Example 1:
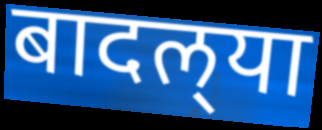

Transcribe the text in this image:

बादल्या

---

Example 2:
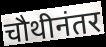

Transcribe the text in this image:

चौथीनंतर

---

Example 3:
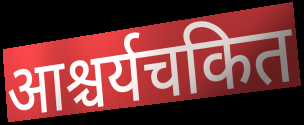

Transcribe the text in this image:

आश्चर्यचकित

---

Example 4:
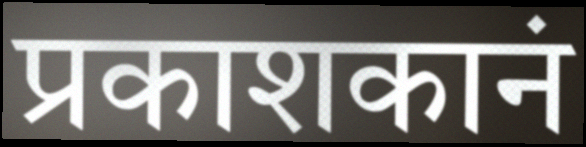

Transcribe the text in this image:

प्रकाशकानं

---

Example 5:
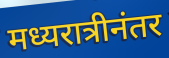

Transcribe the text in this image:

मध्यरात्रीनंतर